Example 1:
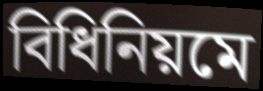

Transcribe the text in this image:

বিধিনিয়মে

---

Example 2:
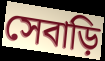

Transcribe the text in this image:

সেবাড়ি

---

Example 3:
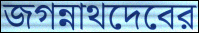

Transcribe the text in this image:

জগন্নাথদেবের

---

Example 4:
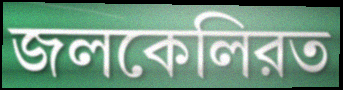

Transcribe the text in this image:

জলকেলিরত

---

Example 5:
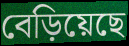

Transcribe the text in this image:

বেড়িয়েছে